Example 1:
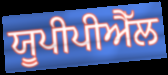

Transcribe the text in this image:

ਯੂਪੀਪੀਐੱਲ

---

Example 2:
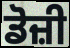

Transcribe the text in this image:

ਡੋਜ਼ੀ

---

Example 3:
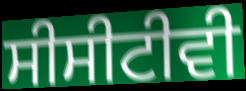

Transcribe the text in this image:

ਸੀਸੀਟੀਵੀ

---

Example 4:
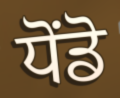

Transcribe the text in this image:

ਧੋਂਡੋ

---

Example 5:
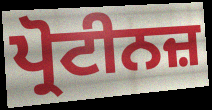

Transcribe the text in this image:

ਪ੍ਰੋਟੀਨਜ਼